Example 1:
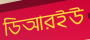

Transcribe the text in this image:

ডিআরইউ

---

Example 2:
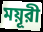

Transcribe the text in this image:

ময়ূরী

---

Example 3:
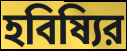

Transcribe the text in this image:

হবিষ্যির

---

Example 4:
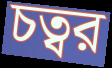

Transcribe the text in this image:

চত্বর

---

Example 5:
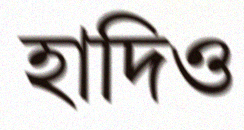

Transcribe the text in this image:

হাদিও